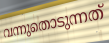
വന്നുതൊടുന്നത്